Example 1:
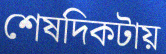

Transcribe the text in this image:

শেষদিকটায়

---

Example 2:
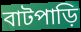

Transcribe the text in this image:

বাটপাড়ি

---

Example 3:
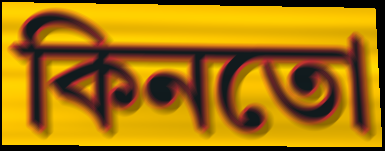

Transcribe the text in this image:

কিনতো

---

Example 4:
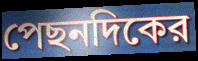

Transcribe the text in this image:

পেছনদিকের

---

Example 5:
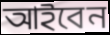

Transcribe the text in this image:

আইবেন